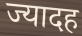
ज्यादह